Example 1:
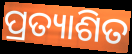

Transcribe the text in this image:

ପ୍ରତ୍ୟାଶିତ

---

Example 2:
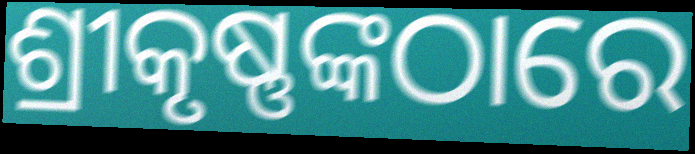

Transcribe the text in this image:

ଶ୍ରୀକୃଷ୍ଣଙ୍କଠାରେ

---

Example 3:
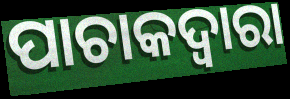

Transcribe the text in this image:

ପାଚାକଦ୍ଵାରା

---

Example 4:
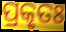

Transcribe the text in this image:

ପ୍ରକୃତଃ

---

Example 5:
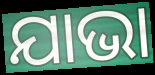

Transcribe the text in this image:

ଯାଭା